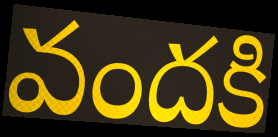
వందకి